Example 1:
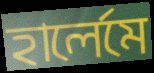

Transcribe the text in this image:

হার্লেমে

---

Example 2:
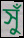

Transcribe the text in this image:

সুঁ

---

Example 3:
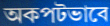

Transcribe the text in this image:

অকপটভাবে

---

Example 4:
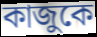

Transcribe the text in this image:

কাজুকে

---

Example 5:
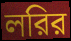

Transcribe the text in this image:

লরির